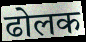
ढोलक